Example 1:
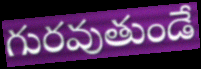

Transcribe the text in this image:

గురవుతుండే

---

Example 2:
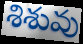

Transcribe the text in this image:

శిశువు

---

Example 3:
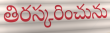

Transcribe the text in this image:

తిరస్కరించును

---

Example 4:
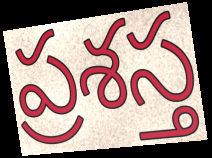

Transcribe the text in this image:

ప్రశస్త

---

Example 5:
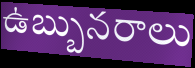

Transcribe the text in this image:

ఉబ్బునరాలు